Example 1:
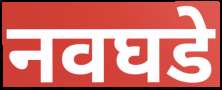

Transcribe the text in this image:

नवघडे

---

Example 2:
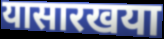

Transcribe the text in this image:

यासारखया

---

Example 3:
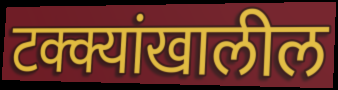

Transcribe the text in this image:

टक्क्यांखालील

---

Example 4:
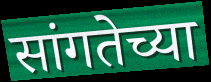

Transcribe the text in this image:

सांगतेच्या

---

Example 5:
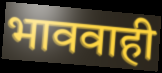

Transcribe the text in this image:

भाववाही